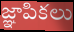
జ్ఞాపికలు